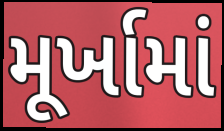
મૂર્ખામાં